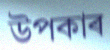
উপকাৰ